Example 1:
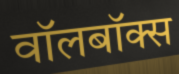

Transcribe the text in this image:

वॉलबॉक्स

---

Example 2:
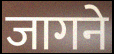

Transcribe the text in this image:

जागने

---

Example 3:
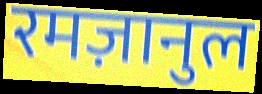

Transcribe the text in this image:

रमज़ानुल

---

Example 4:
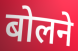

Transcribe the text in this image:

बोलने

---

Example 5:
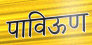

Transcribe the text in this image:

पाविऊण